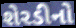
શેરડીનો